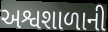
અશ્વશાળાની